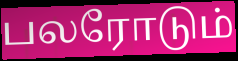
பலரோடும்